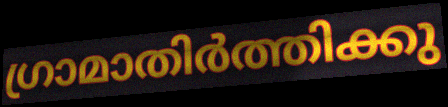
ഗ്രാമാതിർത്തിക്കു